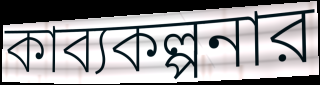
কাব্যকল্পনার